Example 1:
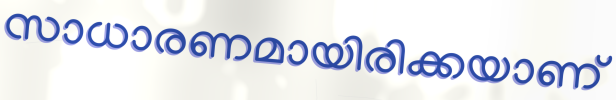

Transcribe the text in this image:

സാധാരണമായിരിക്കയാണ്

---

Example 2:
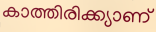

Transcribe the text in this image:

കാത്തിരിക്ക്യാണ്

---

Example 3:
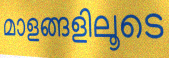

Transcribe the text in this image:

മാളങ്ങളിലൂടെ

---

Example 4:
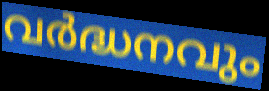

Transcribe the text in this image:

വർദ്ധനവും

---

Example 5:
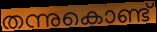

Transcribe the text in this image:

തന്നുകൊണ്ട്